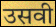
उसवी